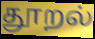
தூறல்